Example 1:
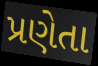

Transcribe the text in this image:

પ્રણેતા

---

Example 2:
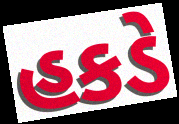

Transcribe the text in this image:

હકડે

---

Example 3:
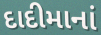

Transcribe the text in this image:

દાદીમાનાં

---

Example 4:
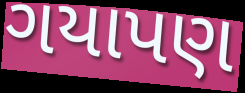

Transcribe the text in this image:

ગયાપણ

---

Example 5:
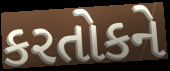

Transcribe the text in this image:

કરતોકને